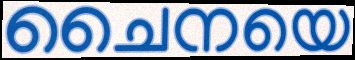
ചൈനയെ